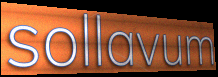
sollavum